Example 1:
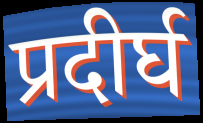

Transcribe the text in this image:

प्रदीर्घ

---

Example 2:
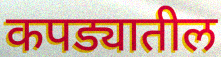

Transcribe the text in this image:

कपड्यातील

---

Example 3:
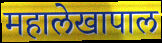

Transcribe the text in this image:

महालेखापाल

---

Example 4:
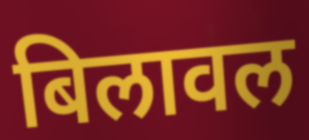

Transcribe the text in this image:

बिलावल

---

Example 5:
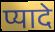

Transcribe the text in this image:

प्यादे